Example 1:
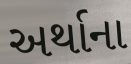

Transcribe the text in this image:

અર્થાના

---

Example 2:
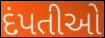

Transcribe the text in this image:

દંપતીઓ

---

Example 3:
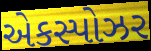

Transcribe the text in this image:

એકસ્પોઝર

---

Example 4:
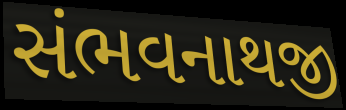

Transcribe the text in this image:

સંભવનાથજી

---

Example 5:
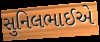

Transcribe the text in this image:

સુનિલભાઈએ